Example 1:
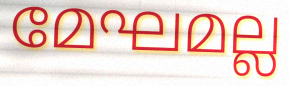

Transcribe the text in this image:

മേഘമല്ല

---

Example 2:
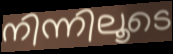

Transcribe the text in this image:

നിന്നിലൂടെ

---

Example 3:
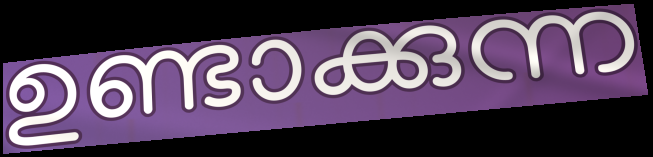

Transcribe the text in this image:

ഉണ്ടാക്കുന്ന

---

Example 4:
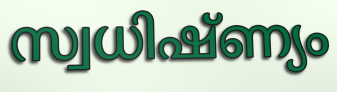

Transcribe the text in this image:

സ്വധിഷ്ണ്യം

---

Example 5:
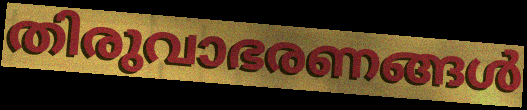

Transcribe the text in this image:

തിരുവാഭരണങ്ങൾ